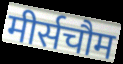
मीर्सचौम